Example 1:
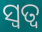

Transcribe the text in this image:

ସ୍ୱତ୍ୱ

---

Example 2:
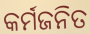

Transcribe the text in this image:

କର୍ମଜନିତ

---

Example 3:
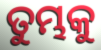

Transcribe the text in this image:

ତୁମ୍ଭକୁ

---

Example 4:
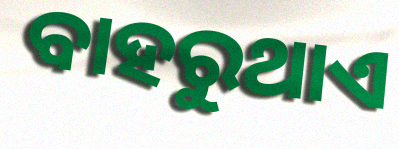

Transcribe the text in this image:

ବାହରୁଥାଏ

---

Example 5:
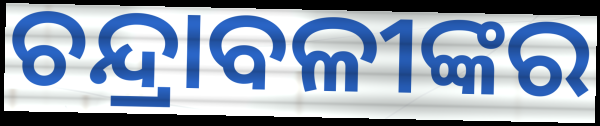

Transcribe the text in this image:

ଚନ୍ଦ୍ରାବଳୀଙ୍କର